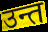
उन्त